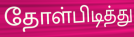
தோள்பிடித்து